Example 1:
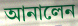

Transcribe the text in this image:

আনালেন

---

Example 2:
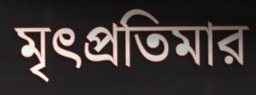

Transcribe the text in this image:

মৃৎপ্রতিমার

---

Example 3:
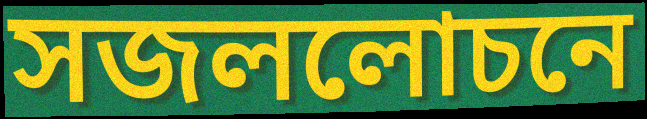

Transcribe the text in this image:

সজললোচনে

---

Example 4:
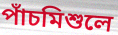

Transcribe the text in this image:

পাঁচমিশুলে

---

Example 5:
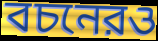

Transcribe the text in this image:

বচনেরও